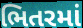
ભિતરમાં